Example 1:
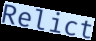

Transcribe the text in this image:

Relict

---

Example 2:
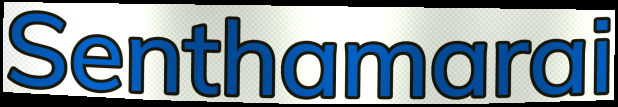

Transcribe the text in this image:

Senthamarai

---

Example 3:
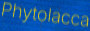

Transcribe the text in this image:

Phytolacca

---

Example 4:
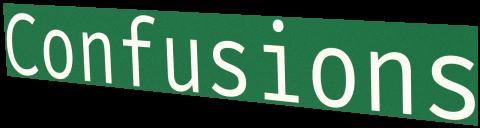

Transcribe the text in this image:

Confusions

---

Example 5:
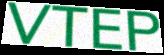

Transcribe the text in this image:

VTEP